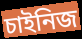
চাইনিজ